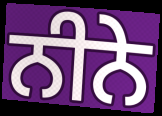
ਨੀਨੇ